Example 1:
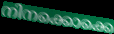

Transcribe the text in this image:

നിനക്കൊക്കെ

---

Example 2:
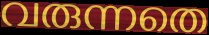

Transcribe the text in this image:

വരുന്നതെ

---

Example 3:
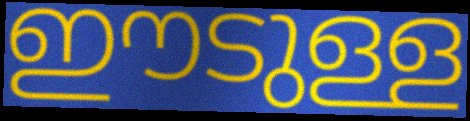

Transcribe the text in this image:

ഈടുള്ള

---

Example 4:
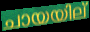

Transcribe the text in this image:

ചായയില്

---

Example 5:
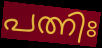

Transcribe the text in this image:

പത്നിഃ